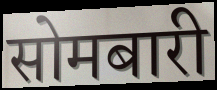
सोमबारी